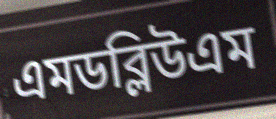
এমডব্লিউএম